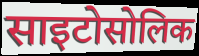
साइटोसोलिक